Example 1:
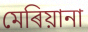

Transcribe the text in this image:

মেৰিয়ানা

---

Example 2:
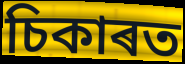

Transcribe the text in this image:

চিকাৰত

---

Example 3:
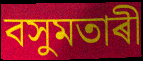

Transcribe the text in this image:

বসুমতাৰী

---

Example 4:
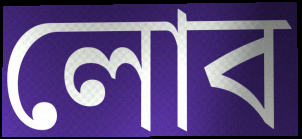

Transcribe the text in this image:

লোব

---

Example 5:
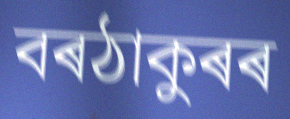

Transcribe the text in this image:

বৰঠাকুৰৰ